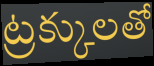
ట్రక్కులతో